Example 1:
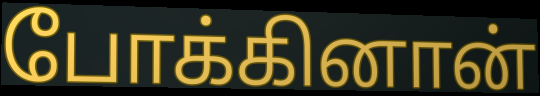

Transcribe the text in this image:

போக்கினான்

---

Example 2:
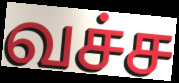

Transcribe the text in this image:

வச்ச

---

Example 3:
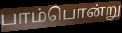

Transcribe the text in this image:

பாம்பொன்று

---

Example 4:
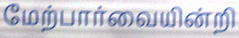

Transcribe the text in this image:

மேற்பார்வையின்றி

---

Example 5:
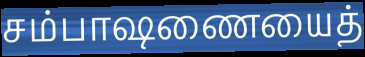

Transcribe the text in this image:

சம்பாஷணையைத்